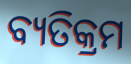
ବ୍ୟତିକ୍ରମ